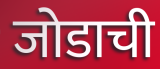
जोडाची